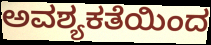
ಅವಶ್ಯಕತೆಯಿಂದ